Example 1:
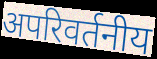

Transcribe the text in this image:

अपरिवर्तनीय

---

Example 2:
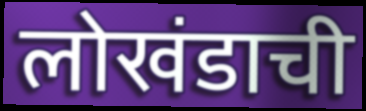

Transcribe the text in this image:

लोखंडाची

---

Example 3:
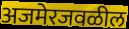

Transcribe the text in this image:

अजमेरजवळील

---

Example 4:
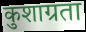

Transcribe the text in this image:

कुशाग्रता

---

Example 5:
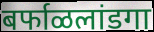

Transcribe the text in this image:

बर्फाळलांडगा